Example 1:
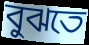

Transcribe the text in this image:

বুঝতে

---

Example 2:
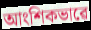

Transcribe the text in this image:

আংশিকভাৱে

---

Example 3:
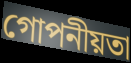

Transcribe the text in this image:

গোপনীয়তা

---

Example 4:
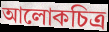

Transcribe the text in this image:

আলোকচিত্ৰ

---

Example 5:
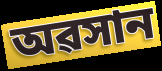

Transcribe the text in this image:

অৱসান